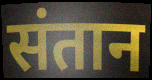
संतान